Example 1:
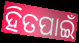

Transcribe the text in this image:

ହିତପାଇଁ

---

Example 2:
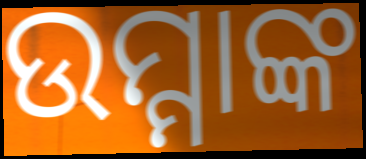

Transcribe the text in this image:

ଉମ୍ମାଙ୍କ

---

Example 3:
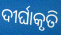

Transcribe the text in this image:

ଦୀର୍ଘାକୃତି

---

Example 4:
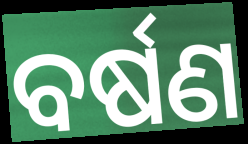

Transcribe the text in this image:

ବର୍ଷଣ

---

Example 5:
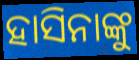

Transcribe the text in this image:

ହାସିନାଙ୍କୁ